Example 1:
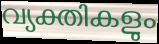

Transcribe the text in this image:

വ്യക്തികളും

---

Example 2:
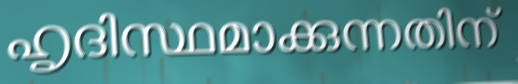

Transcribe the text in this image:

ഹൃദിസ്ഥമാക്കുന്നതിന്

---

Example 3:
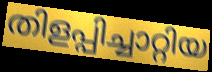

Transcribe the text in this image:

തിളപ്പിച്ചാറ്റിയ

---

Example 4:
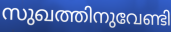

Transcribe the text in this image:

സുഖത്തിനുവേണ്ടി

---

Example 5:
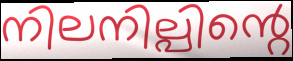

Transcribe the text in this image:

നിലനില്പിന്റെ